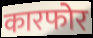
कारफोर